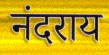
नंदराय